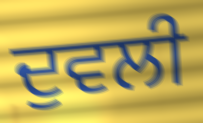
ਦੁਵਲੀ